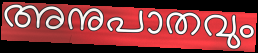
അനുപാതവും